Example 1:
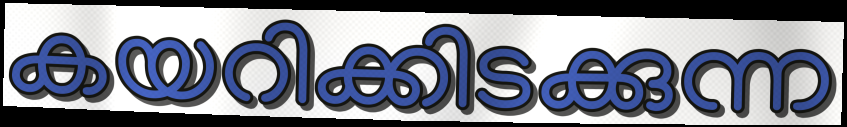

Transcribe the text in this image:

കയറിക്കിടക്കുന്ന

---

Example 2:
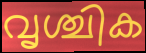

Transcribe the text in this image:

വൃശ്ചിക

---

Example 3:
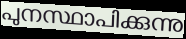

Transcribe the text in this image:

പുനസ്ഥാപിക്കുന്നു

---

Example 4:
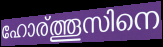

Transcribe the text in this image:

ഹോര്ത്തൂസിനെ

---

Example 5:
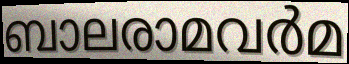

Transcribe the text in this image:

ബാലരാമവർമ